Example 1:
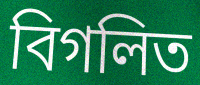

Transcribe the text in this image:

বিগলিত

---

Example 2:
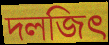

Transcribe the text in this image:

দলজিৎ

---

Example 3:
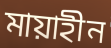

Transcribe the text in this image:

মায়াহীন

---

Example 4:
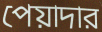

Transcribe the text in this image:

পেয়াদার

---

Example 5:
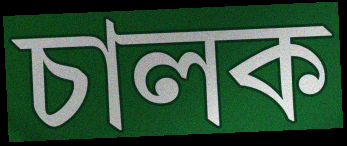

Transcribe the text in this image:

চালক